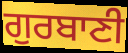
ਗੁਰਬਾਣੀ